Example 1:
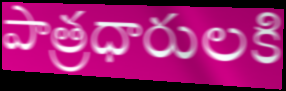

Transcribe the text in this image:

పాత్రధారులకి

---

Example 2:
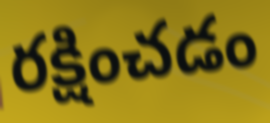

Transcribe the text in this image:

రక్షించడం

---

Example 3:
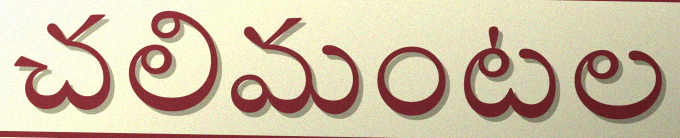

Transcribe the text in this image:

చలిమంటల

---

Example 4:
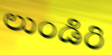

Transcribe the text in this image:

లుండిరి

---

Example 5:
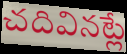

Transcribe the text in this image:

చదివినట్లే